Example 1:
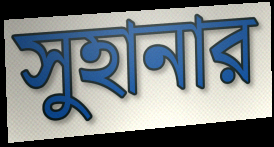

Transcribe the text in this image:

সুহানার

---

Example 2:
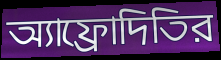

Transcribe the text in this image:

অ্যাফ্রোদিতির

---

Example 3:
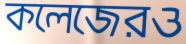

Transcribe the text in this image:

কলেজেরও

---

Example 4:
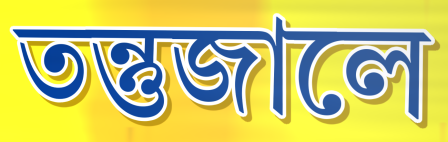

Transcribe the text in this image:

তন্তুজালে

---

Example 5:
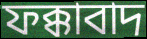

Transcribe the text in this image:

ফক্কাবাদ